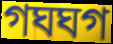
গঘঘগ